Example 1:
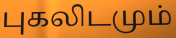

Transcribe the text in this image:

புகலிடமும்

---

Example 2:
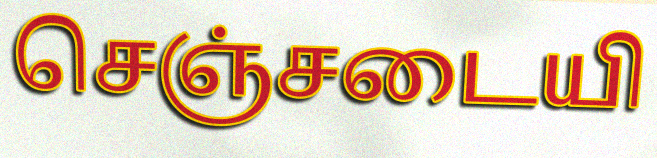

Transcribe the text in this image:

செஞ்சடையி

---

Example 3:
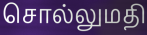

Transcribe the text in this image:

சொல்லுமதி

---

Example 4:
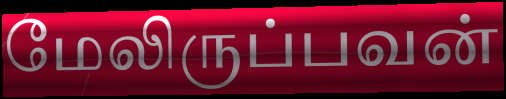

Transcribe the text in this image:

மேலிருப்பவன்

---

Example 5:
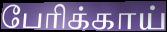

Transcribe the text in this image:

பேரிக்காய்